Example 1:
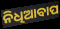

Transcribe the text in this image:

ନିଧିଆବାପ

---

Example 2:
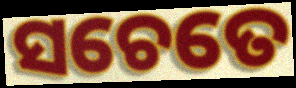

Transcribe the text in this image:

ସଚେତେ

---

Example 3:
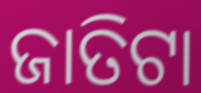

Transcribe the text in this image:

ଜାତିଟା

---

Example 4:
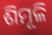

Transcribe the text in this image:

ଶିମୂଳି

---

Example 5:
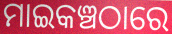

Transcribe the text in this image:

ମାଇକଞ୍ଚଠାରେ